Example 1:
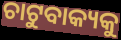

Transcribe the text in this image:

ଚାଟୁବାକ୍ୟକୁ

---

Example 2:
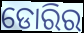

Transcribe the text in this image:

ଡୋରିର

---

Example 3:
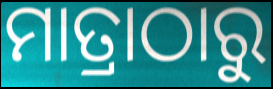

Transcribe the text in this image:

ମାତ୍ରାଠାରୁ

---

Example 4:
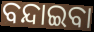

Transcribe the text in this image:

ବନ୍ଦାଇବା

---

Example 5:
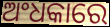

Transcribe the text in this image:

ଅଂଧକାରେ